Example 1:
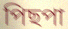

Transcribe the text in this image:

পিছপা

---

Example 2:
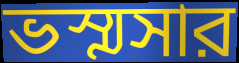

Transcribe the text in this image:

ভস্মসার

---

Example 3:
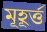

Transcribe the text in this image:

মূহূর্ত্ত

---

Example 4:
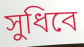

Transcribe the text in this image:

সুধিবে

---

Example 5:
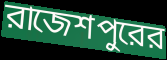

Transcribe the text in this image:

রাজেশপুরের